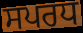
ਸਪਰਧ